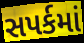
સપર્કમાં